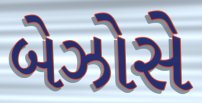
બેઝોસે